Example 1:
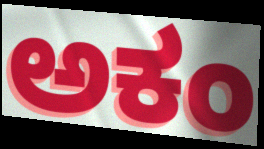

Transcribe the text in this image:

ಅಕಂ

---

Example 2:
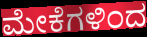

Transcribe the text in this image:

ಮೇಕೆಗಳಿಂದ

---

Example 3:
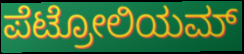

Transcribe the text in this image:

ಪೆಟ್ರೋಲಿಯಮ್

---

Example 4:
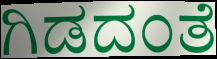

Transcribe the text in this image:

ಗಿಡದಂತೆ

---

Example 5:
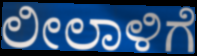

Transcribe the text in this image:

ಲೀಲಾಳಿಗೆ